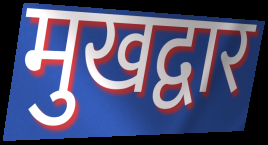
मुखद्वार